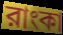
রাংকা